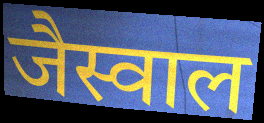
जैस्वाल